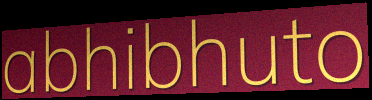
abhibhuto